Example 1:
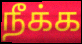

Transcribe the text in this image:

நீக்க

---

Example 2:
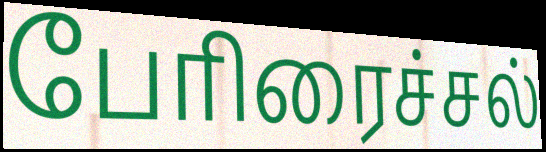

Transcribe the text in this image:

பேரிரைச்சல்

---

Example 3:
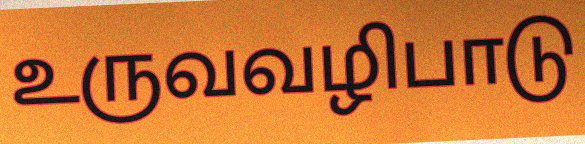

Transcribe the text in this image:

உருவவழிபாடு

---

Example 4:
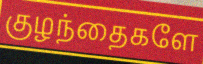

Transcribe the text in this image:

குழந்தைகளே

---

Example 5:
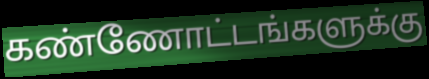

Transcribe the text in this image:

கண்ணோட்டங்களுக்கு